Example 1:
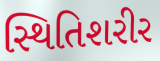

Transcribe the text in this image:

સ્થિતિશરીર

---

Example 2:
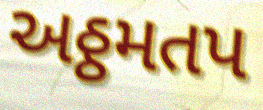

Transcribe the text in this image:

અઠ્ઠમતપ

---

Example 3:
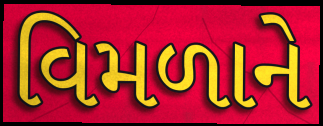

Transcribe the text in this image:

વિમળાને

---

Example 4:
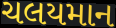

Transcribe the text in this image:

ચલયમાન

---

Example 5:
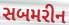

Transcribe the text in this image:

સબમરીન